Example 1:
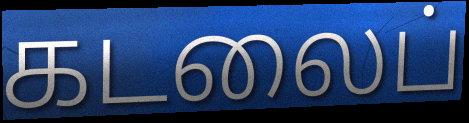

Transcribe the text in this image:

கடலைப்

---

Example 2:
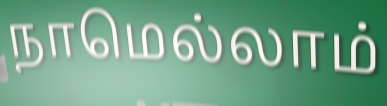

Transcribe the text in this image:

நாமெல்லாம்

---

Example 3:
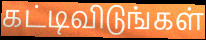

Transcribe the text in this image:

கட்டிவிடுங்கள்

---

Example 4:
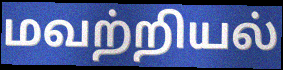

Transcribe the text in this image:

மவற்றியல்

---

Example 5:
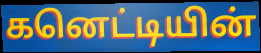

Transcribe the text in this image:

கனெட்டியின்